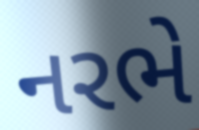
નરભે